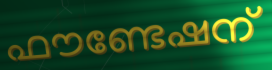
ഫൗണ്ടേഷന്